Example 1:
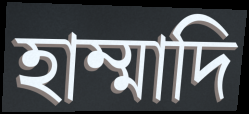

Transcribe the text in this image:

হাম্মাদি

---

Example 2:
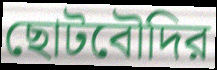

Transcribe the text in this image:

ছোটবৌদির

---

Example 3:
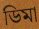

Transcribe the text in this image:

ডিমা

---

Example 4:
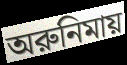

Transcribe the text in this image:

অরুনিমায়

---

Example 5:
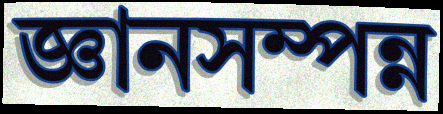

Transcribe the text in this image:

জ্ঞানসম্পন্ন